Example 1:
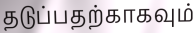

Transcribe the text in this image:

தடுப்பதற்காகவும்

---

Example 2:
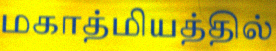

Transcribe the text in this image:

மகாத்மியத்தில்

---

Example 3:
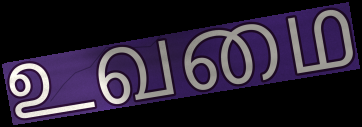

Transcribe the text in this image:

உவமை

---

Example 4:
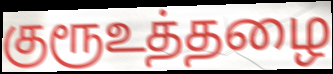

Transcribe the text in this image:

குரூஉத்தழை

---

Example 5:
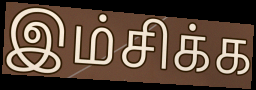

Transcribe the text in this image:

இம்சிக்க